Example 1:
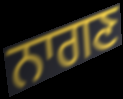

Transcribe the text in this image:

ਨਾਗਣ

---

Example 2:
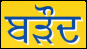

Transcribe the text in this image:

ਬੜੌਦ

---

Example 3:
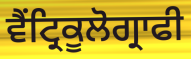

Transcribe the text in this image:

ਵੈਂਟ੍ਰਿਕੂਲੋਗ੍ਰਾਫੀ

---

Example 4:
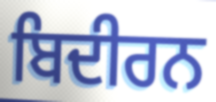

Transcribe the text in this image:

ਬਿਦੀਰਨ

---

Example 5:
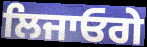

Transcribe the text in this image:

ਲਿਜਾਓਗੇ